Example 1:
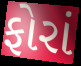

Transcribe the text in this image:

ફોરાં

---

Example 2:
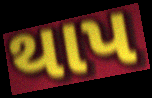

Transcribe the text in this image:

થાપ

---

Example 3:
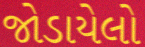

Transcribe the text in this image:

જોડાયેલો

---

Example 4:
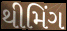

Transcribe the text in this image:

થીમિંગ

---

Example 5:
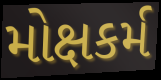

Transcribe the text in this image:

મોક્ષકર્મ